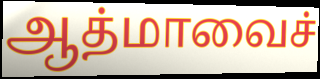
ஆத்மாவைச்